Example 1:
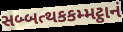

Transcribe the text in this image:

સબ્બત્થકકમ્મટ્ઠાનં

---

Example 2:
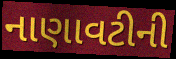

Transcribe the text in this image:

નાણાવટીની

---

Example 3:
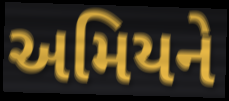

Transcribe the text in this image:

અમિયને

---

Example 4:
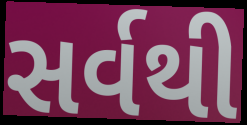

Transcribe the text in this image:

સર્વથી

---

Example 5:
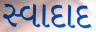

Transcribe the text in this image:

સ્વાદાદ